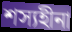
শস্যহীনা